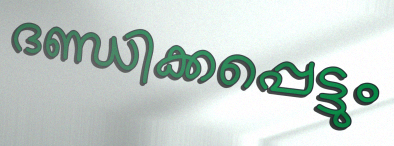
ദണ്ഡിക്കപ്പെട്ടും